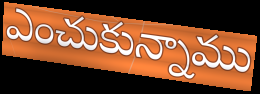
ఎంచుకున్నాము